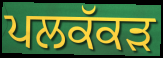
ਪਲਕੱਕੜ